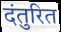
दंतुरित